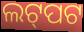
ଲଟ୍‌ପଟ